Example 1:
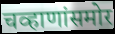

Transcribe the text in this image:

चव्हाणांसमोर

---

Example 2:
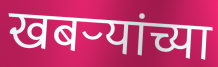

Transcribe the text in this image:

खबऱ्यांच्या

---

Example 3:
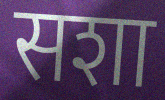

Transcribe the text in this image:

सशा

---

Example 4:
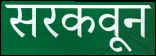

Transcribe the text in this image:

सरकवून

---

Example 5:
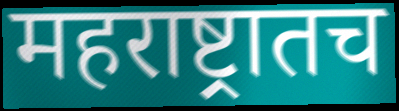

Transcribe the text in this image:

महराष्ट्रातच